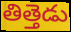
తిత్తెడు